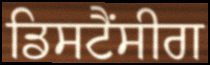
ਡਿਸਟੈਂਸੀਗ